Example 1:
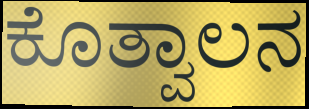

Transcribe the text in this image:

ಕೊತ್ವಾಲನ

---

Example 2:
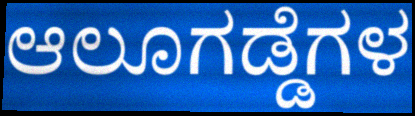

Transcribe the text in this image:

ಆಲೂಗಡ್ಡೆಗಳ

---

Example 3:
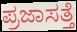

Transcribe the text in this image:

ಪ್ರಜಾಸತ್ತೆ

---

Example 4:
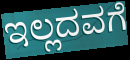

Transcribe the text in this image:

ಇಲ್ಲದವಗೆ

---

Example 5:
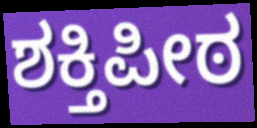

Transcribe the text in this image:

ಶಕ್ತಿಪೀಠ